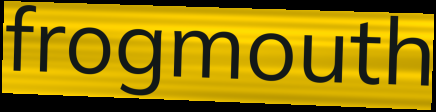
frogmouth